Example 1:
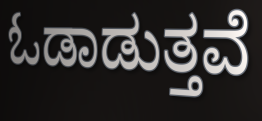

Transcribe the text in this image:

ಓಡಾಡುತ್ತವೆ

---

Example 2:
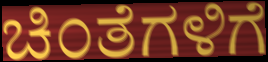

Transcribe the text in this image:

ಚಿಂತೆಗಳಿಗೆ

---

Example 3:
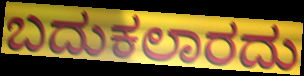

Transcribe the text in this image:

ಬದುಕಲಾರದು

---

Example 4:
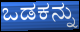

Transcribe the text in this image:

ಒಡಕನ್ನು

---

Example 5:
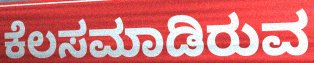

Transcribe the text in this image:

ಕೆಲಸಮಾಡಿರುವ